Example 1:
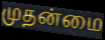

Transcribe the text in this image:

முதன்மை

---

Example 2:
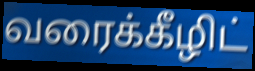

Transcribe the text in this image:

வரைக்கீழிட்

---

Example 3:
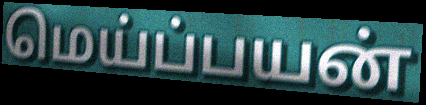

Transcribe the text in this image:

மெய்ப்பயன்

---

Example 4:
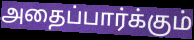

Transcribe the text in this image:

அதைப்பார்க்கும்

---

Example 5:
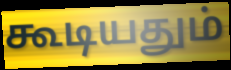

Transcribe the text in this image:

கூடியதும்